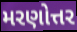
મરણોત્તર